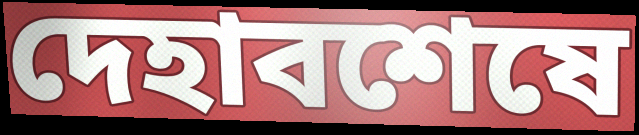
দেহাবশেষে